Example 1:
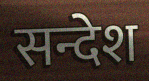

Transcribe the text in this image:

सन्देश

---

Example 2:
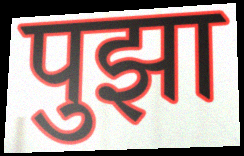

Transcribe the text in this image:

पुझा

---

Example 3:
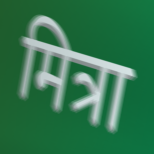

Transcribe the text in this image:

मित्रा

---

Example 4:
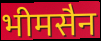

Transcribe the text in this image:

भीमसैन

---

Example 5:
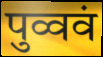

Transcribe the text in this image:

पुव्ववं